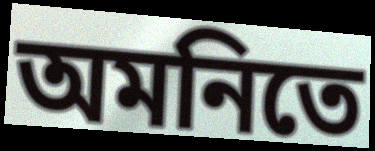
অমনিতে